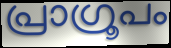
പ്രാഗ്രൂപം